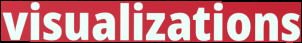
visualizations